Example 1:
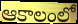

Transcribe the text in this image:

ఆకాలంలో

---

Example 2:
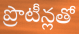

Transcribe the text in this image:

ప్రొటీన్లతో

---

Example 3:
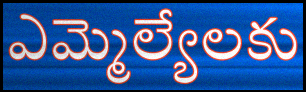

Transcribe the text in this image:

ఎమ్మెల్యేలకు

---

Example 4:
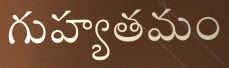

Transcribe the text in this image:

గుహ్యతమం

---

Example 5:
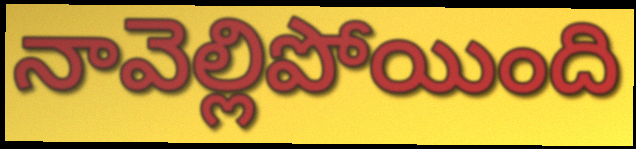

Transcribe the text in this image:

నావెల్లిపోయింది